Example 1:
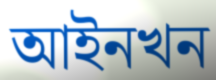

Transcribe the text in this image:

আইনখন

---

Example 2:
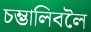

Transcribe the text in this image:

চম্ভালিবলৈ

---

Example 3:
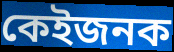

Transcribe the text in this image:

কেইজনক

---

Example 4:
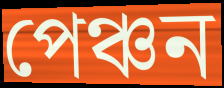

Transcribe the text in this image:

পেঞ্চন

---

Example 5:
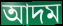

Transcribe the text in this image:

আদম